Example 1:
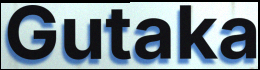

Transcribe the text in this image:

Gutaka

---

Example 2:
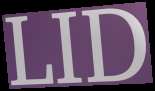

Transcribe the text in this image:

LID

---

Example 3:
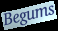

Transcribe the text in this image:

Begums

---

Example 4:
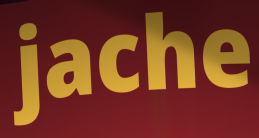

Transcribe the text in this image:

jache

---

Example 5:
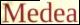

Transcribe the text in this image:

Medea